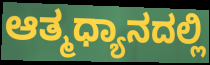
ಆತ್ಮಧ್ಯಾನದಲ್ಲಿ